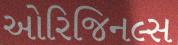
ઓરિજિનલ્સ